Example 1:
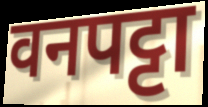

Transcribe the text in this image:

वनपट्टा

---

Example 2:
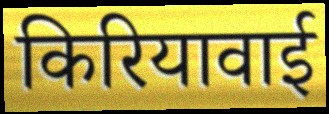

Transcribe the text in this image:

किरियावाई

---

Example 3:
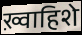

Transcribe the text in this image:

ख़्वाहिशे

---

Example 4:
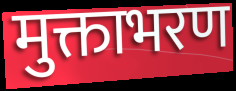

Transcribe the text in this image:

मुक्ताभरण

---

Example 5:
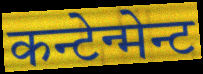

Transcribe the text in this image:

कन्टेन्मेन्ट